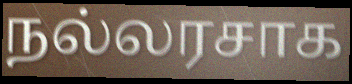
நல்லரசாக